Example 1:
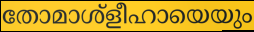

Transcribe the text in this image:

തോമാശ്ളീഹായെയും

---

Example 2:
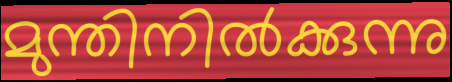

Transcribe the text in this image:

മുന്തിനിൽക്കുന്നു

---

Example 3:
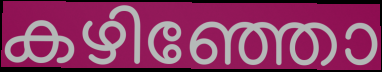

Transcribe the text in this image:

കഴിഞ്ഞോ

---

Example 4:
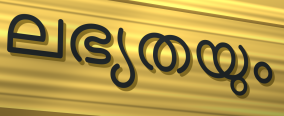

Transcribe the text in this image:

ലഭ്യതയും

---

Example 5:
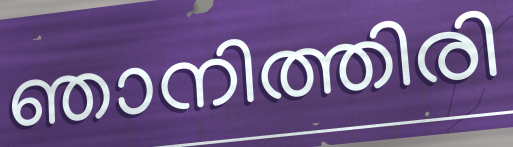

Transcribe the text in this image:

ഞാനിത്തിരി